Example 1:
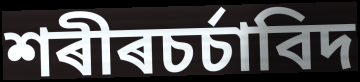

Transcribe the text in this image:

শৰীৰচৰ্চাবিদ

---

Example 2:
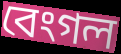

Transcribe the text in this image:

বেংগল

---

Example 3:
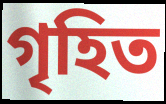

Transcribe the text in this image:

গৃহিত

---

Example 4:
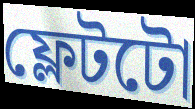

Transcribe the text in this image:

ফ্লেটটো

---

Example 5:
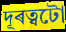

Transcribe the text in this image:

দূৰত্বটো